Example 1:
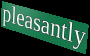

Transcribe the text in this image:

pleasantly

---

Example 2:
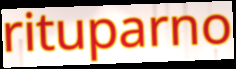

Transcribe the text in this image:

rituparno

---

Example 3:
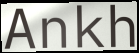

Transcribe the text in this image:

Ankh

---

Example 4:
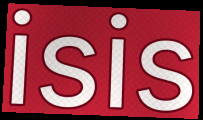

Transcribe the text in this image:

isis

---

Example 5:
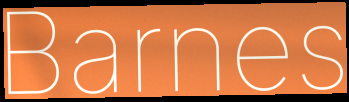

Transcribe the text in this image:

Barnes